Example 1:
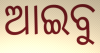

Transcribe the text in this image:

ଆଇବୁ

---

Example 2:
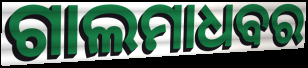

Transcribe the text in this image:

ଗାଲମାଧବର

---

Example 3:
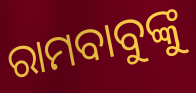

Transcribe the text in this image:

ରାମବାବୁଙ୍କୁ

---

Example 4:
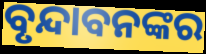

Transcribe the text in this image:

ବୃନ୍ଦାବନଙ୍କର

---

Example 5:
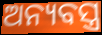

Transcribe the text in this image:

ଅନ୍ୟବସ୍ତ୍ର